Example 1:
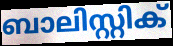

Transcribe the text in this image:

ബാലിസ്റ്റിക്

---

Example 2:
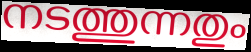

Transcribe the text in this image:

നടത്തുന്നതും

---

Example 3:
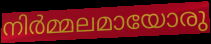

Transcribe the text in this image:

നിർമ്മലമായോരു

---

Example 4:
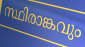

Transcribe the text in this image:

സ്ഥിരാങ്കവും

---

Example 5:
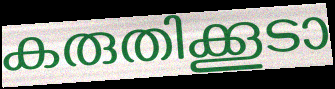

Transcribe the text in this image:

കരുതിക്കൂടാ